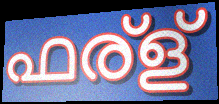
ഫര്ള്